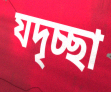
যদৃচ্ছা